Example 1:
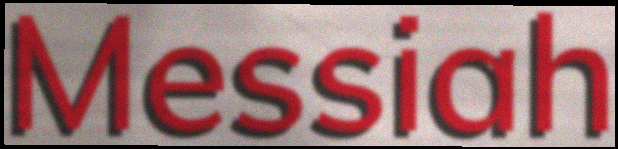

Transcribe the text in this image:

Messiah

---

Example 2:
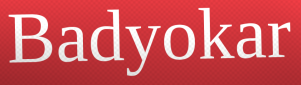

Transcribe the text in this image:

Badyokar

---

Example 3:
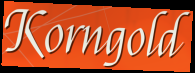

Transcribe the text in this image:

Korngold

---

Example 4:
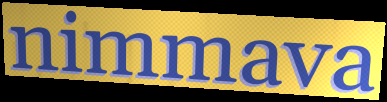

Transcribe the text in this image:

nimmava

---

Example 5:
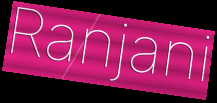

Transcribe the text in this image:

Ranjani